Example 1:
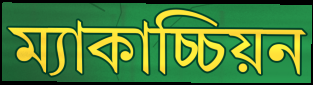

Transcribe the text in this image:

ম্যাকাচ্চিয়ন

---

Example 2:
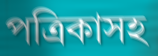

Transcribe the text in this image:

পত্রিকাসহ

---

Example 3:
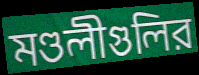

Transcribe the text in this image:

মণ্ডলীগুলির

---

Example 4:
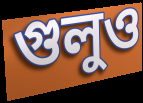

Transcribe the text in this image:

গুলুও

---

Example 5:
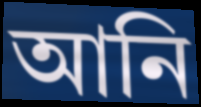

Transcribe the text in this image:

আনি